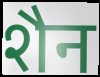
शैन